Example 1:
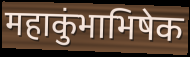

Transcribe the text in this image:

महाकुंभाभिषेक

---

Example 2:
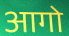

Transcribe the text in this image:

आगो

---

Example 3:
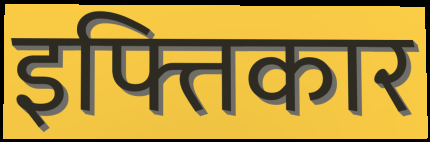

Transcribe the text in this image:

इफ्तिकार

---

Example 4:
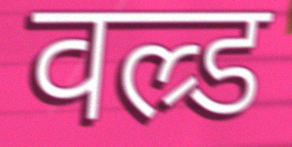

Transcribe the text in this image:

वल्र्ड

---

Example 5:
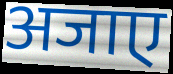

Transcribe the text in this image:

अजाए